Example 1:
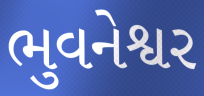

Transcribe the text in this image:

ભુવનેશ્વર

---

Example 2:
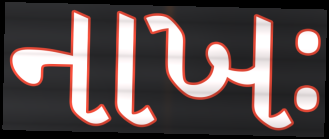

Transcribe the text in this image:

નાખઃ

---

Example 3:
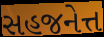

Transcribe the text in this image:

સહજનેત્ત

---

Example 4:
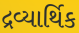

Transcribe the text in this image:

દ્રવ્યાર્થિક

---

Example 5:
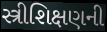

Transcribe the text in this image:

સ્ત્રીશિક્ષણની